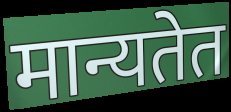
मान्यतेत